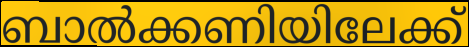
ബാൽക്കണിയിലേക്ക്